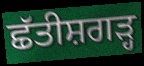
ਛੱਤੀਸ਼ਗੜ੍ਹ